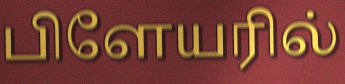
பிளேயரில்